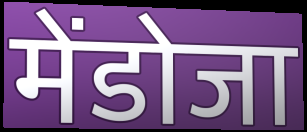
मेंडोजा